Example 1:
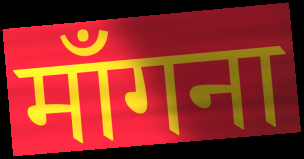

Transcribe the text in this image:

माँगना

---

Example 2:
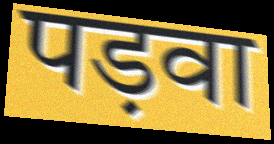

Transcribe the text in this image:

पड़वा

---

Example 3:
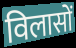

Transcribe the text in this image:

विलासों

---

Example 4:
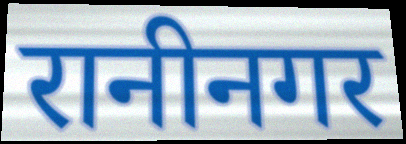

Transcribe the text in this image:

रानीनगर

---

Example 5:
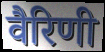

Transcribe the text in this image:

वैरिणी